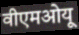
वीएमओयू